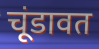
चूंडावत